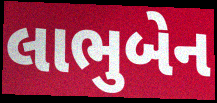
લાભુબેન